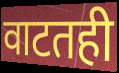
वाटतही